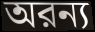
অরন্য